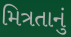
મિત્રતાનું